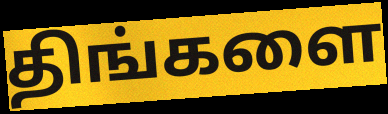
திங்களை